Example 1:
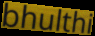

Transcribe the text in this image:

bhulthi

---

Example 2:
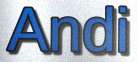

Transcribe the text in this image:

Andi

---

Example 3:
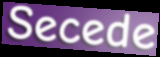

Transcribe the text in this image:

Secede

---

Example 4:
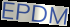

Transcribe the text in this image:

EPDM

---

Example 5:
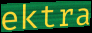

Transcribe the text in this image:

ektra